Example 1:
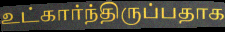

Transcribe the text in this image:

உட்கார்ந்திருப்பதாக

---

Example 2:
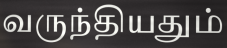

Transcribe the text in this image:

வருந்தியதும்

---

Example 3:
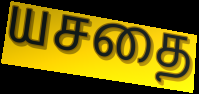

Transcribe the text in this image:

யசதை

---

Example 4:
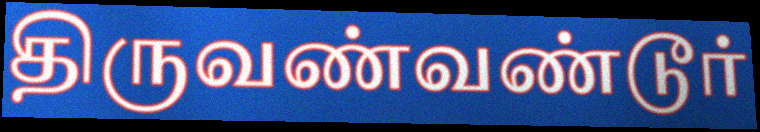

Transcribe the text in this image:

திருவண்வண்டூர்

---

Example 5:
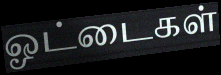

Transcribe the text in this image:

ஓட்டைகள்